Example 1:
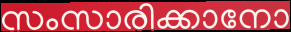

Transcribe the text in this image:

സംസാരിക്കാനോ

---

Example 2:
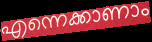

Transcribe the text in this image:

എന്നെക്കാണാം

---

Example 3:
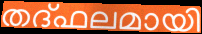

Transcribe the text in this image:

തദ്ഫലമായി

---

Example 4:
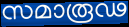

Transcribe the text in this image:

സമാരൂഢ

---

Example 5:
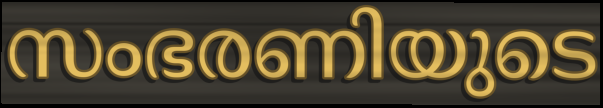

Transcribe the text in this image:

സംഭരണിയുടെ